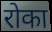
रोका